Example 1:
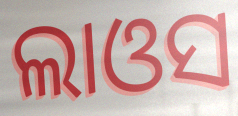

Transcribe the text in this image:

ଲାଓସ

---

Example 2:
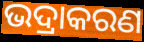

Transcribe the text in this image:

ଭଦ୍ରାକରଣ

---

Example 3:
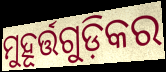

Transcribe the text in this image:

ମୁହୂର୍ତ୍ତଗୁଡ଼ିକର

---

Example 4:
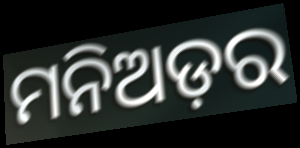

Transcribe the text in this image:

ମନିଅଡ଼ର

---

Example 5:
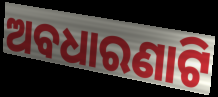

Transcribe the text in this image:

ଅବଧାରଣାଟି